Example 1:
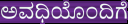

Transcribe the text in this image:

ಅವಧಿಯೊಂದಿಗೆ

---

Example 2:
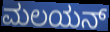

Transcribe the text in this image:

ಮಲಯನ್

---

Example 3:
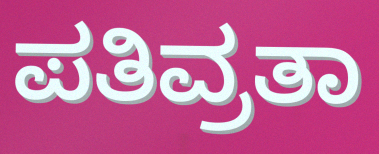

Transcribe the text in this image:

ಪತಿವ್ರತಾ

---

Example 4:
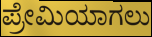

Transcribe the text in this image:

ಪ್ರೇಮಿಯಾಗಲು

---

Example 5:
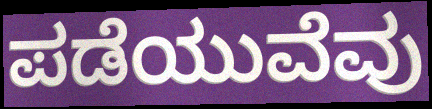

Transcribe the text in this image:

ಪಡೆಯುವೆವು